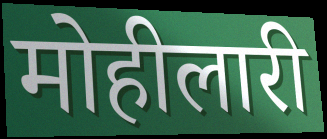
मोहीलारी